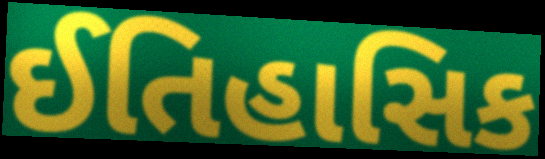
ઈતિહાસિક